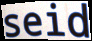
seid